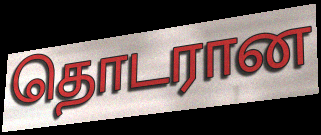
தொடரான